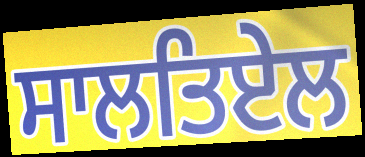
ਸਾਲਤਿਏਲ